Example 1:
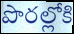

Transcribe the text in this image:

పొరల్లోకి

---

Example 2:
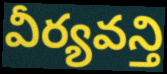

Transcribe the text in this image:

వీర్యవన్తి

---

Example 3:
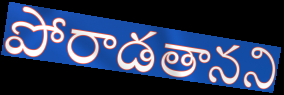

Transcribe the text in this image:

పోరాడతానని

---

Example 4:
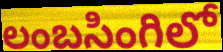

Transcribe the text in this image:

లంబసింగిలో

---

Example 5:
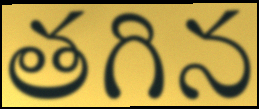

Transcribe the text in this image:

తగిన